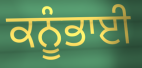
ਕਨੂੰਭਾਈ